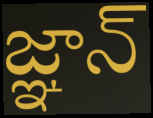
జ్ఞాన్